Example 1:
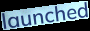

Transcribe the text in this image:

launched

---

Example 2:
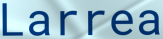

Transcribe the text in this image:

Larrea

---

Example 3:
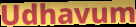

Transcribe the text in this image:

Udhavum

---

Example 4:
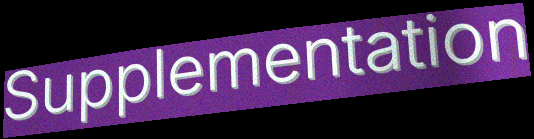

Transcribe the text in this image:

Supplementation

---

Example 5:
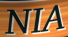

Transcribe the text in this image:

NIA